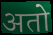
अतो